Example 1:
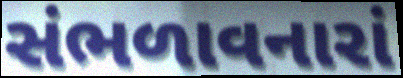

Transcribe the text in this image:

સંભળાવનારાં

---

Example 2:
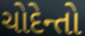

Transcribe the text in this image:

ચોદેન્તો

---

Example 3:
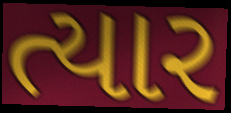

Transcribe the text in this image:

ત્‍યાર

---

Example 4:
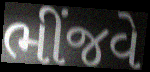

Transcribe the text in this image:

ભીંજવે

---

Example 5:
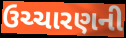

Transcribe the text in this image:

ઉચ્ચારણની